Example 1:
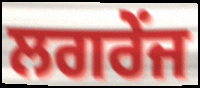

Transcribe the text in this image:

ਲਗਰੇਂਜ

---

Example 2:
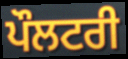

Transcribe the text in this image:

ਪੌਲਟਰੀ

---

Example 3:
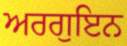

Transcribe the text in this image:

ਅਰਗੁਇਨ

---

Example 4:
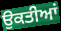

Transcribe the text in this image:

ਉਕਤੀਆਂ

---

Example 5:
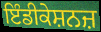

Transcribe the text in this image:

ਇੰਡੀਕੇਸ਼ਨਜ਼